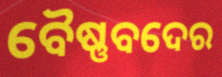
ବୈଷ୍ଣବଦେର